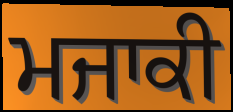
ਮਜਾਕੀ